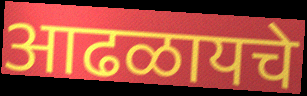
आढळायचे